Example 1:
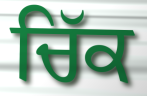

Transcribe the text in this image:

ਚਿੱਕ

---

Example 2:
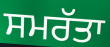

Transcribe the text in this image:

ਸਮਰੱਤਾ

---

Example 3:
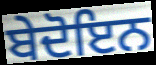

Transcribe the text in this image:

ਬੇਦੋਇਨ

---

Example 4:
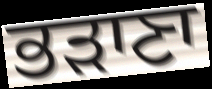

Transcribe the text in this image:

ਭੜਾਣਾ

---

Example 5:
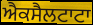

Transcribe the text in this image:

ਐਕਸੈਲਟਾਟਾ